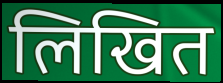
लिखित